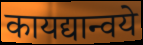
कायद्यान्वये